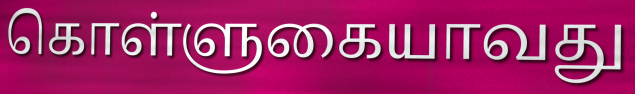
கொள்ளுகையாவது